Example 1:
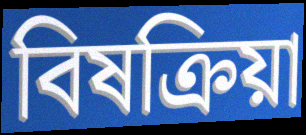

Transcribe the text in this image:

বিষক্রিয়া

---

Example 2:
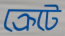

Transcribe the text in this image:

ক্রেটে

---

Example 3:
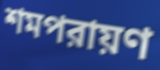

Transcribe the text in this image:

শমপরায়ণ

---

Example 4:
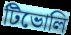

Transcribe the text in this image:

টিভোলি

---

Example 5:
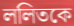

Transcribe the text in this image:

ললিতকে